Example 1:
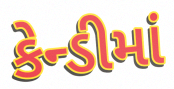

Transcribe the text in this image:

કેન્ડીમાં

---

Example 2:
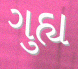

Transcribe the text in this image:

ગુહ્ય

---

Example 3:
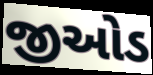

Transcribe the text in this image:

જીઓડ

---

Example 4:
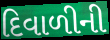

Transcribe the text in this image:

દિવાળીની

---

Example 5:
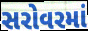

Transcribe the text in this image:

સરોવરમાં